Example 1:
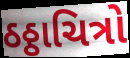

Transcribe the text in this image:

ઠઠ્ઠાચિત્રો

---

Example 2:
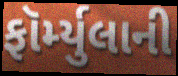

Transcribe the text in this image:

ફૉર્મ્યુલાની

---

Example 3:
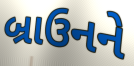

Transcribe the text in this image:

બ્રાઉનને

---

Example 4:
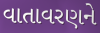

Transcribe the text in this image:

વાતાવરણને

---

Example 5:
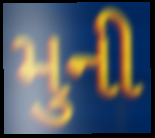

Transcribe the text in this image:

મુની